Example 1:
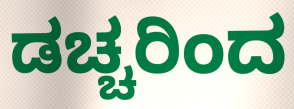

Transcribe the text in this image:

ಡಚ್ಚರಿಂದ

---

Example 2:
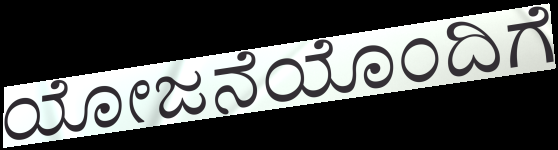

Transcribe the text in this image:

ಯೋಜನೆಯೊಂದಿಗೆ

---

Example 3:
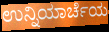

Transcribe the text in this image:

ಉನ್ನಿಯಾರ್ಚೆಯ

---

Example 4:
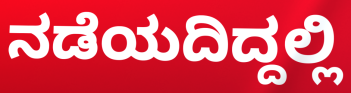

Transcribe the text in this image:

ನಡೆಯದಿದ್ದಲ್ಲಿ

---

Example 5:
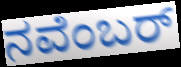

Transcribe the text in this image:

ನವೆಂಬರ್